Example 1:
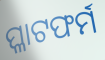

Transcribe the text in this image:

ପ୍ଳାଟଫର୍ମ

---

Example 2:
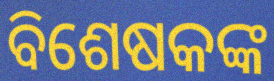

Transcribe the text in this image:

ବିଶେଷକଙ୍କ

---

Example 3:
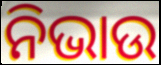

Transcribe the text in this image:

ନିଭାଉ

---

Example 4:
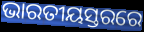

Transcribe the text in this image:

ଭାରତୀୟସ୍ତରରେ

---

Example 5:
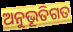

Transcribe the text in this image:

ଅନୁଭୂତିଗତ